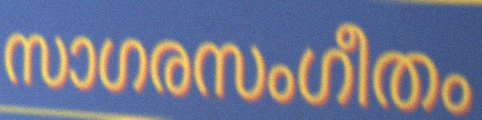
സാഗരസംഗീതം